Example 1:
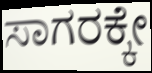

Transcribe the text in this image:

ಸಾಗರಕ್ಕೇ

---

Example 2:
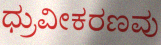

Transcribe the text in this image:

ಧ್ರುವೀಕರಣವು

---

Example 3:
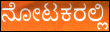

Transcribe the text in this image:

ನೋಟಕರಲ್ಲಿ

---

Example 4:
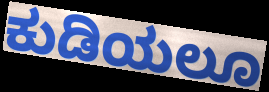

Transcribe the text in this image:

ಕುಡಿಯಲೂ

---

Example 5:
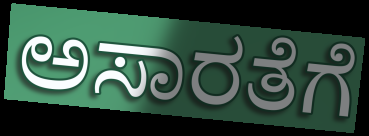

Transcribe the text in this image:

ಅಸಾರತೆಗೆ